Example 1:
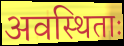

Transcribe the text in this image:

अवस्थिताः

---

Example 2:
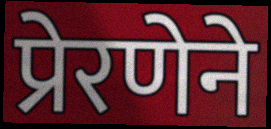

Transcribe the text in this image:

प्रेरणेने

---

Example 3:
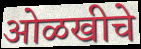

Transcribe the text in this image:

ओळखीचे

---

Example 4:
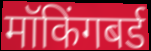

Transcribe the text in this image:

मॉकिंगबर्ड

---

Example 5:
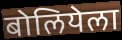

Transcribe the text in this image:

बोलियेला